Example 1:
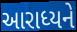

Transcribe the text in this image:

આરાધ્યને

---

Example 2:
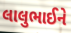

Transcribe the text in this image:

લાલુભાઈને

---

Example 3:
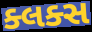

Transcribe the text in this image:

ક્લક્સ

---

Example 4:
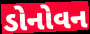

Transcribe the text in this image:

ડોનોવન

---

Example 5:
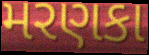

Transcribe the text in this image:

મરણકા